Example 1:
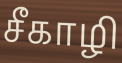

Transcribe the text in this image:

சீகாழி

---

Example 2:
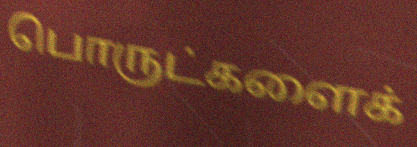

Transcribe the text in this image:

பொருட்களைக்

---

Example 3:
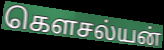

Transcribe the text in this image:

கௌசல்யன்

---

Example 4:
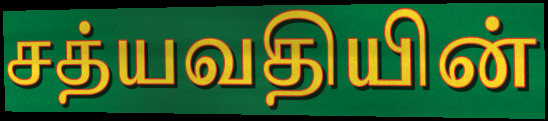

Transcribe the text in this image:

சத்யவதியின்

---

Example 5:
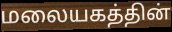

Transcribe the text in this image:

மலையகத்தின்